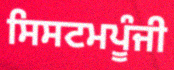
ਸਿਸਟਮਪੂੰਜੀ